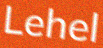
Lehel